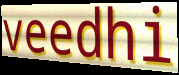
veedhi